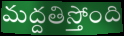
మద్దతిస్తోంది